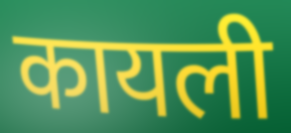
कायली